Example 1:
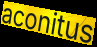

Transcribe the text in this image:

aconitus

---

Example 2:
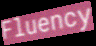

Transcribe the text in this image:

Fluency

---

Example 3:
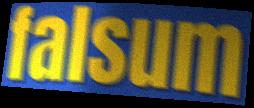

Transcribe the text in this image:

falsum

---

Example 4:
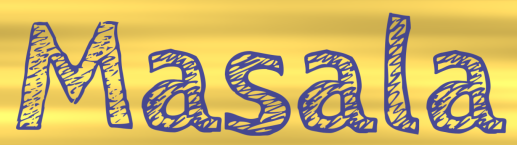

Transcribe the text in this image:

Masala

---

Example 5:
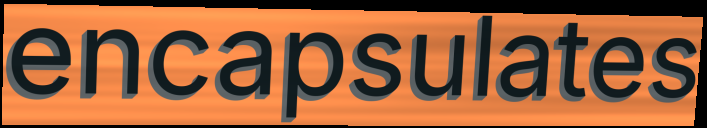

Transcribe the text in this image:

encapsulates